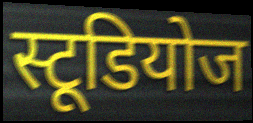
स्टूडियोज